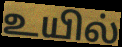
உயில்